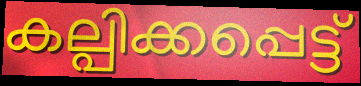
കല്പിക്കപ്പെട്ട്